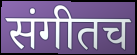
संगीतच